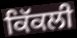
ਕਿੱਕਲੀ